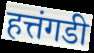
हत्तंगडी